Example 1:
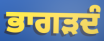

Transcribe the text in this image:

ਭਾਗੜਦੰ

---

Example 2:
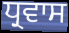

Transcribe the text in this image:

ਧ੍ਰਵਾਸ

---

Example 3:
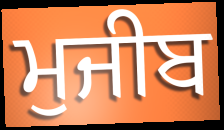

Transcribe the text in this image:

ਮੁਜੀਬ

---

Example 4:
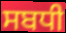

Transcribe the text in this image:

ਸਬਧੀ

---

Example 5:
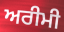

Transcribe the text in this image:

ਅਰੀਮੀ